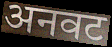
अनवट